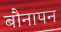
बौनापन